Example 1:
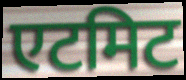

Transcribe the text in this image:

एटमिट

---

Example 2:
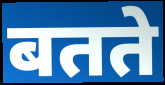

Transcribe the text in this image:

बतते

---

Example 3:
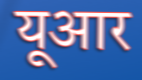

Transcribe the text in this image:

यूआर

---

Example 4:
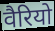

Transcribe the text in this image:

वैरियो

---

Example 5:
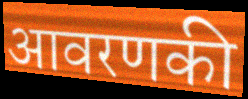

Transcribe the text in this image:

आवरणकी